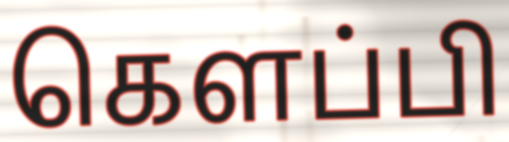
கெளப்பி